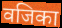
वजिका